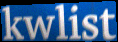
kwlist